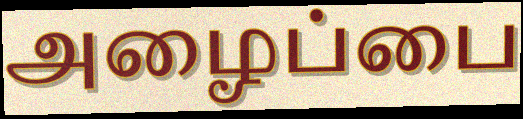
அழைப்பை